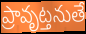
ప్రావృట్తనుతే